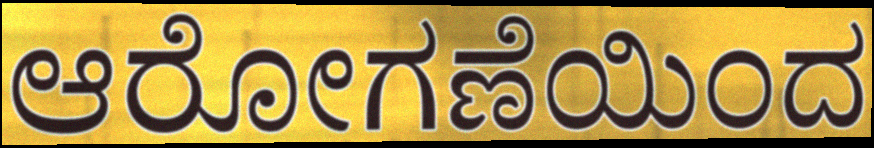
ಆರೋಗಣೆಯಿಂದ